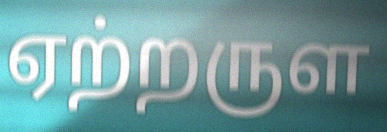
ஏற்றருள